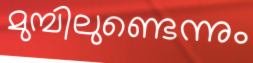
മുമ്പിലുണ്ടെന്നും